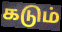
கடும்